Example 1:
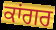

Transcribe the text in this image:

ਕਾਂਗਰ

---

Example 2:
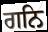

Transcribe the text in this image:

ਗਨਿ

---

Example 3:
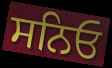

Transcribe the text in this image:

ਸਨਿਓ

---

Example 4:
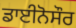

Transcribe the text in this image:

ਡਾਈਨੋਸੌਰ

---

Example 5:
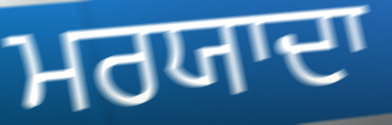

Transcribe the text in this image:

ਮਰਯਾਦਾ